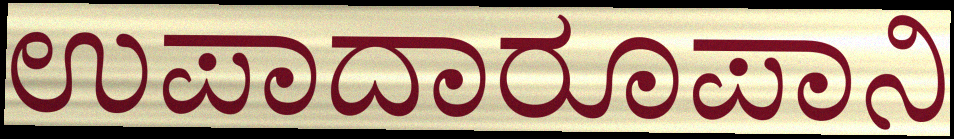
ಉಪಾದಾರೂಪಾನಿ